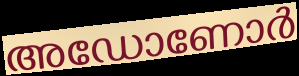
അഡോണോർ